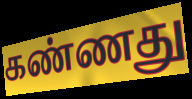
கண்ணது